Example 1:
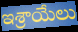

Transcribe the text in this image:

ఇశ్రాయేలు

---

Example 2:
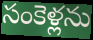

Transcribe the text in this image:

సంకెళ్లను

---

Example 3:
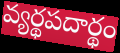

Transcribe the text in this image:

వ్యర్థపదార్థం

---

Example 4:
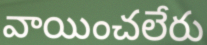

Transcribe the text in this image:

వాయించలేరు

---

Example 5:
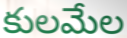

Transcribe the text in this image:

కులమేల